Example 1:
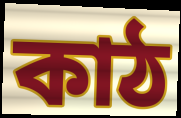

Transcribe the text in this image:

কাঠ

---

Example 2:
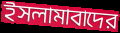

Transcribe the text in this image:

ইসলামাবাদের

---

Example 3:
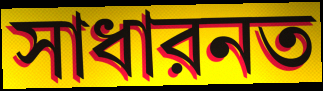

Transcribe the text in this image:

সাধারনত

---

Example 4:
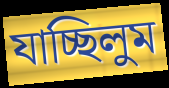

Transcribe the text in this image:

যাচ্ছিলুম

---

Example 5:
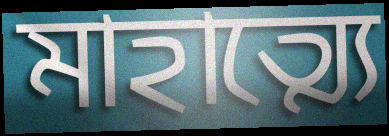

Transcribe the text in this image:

মাহাত্ম্যে